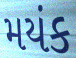
મયંક